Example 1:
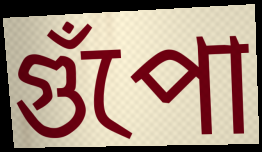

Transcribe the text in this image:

গুঁপো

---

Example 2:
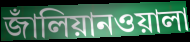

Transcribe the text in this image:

জাঁলিয়ানওয়ালা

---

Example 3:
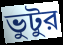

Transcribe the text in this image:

ভুটুর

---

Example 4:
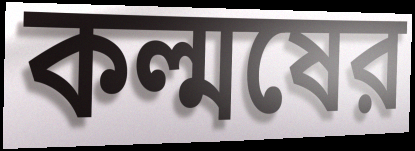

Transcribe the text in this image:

কল্মষের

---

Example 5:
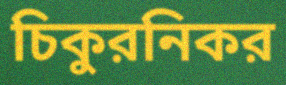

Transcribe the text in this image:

চিকুরনিকর